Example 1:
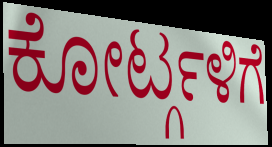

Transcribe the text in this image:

ಕೋರ್ಟ್ಗಳಿಗೆ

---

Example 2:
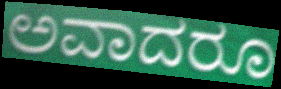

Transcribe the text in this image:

ಅವಾದರೂ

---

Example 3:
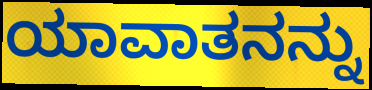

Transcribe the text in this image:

ಯಾವಾತನನ್ನು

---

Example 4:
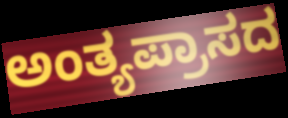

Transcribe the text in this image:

ಅಂತ್ಯಪ್ರಾಸದ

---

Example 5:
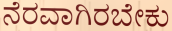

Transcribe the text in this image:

ನೆರವಾಗಿರಬೇಕು